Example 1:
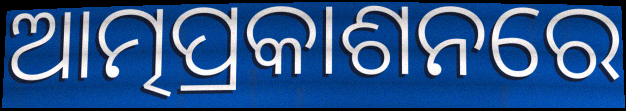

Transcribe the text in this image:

ଆତ୍ମପ୍ରକାଶନରେ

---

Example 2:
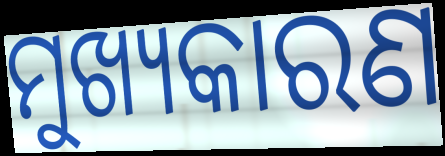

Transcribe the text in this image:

ମୁଖ୍ୟକାରଣ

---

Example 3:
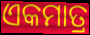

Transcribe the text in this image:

ଏକମାତ୍ର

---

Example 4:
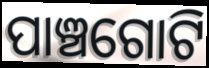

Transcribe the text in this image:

ପାଞ୍ଚଗୋଟି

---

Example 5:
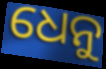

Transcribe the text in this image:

ଧେନୁ